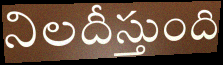
నిలదీస్తుంది